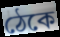
ঠেকে